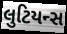
લુટિયન્સ